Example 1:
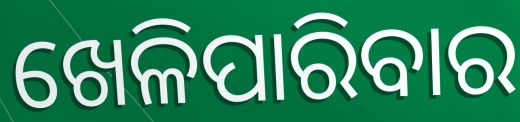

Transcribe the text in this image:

ଖେଳିପାରିବାର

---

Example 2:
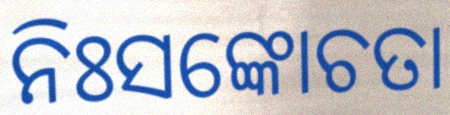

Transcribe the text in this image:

ନିଃସଙ୍କୋଚତା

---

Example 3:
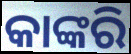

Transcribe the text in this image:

କାଙ୍କରି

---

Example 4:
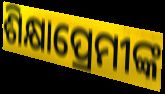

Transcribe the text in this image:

ଶିକ୍ଷାପ୍ରେମୀଙ୍କ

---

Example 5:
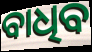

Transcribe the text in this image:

ବାଧିବ